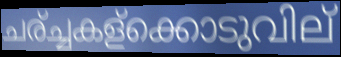
ചര്ച്ചകള്ക്കൊടുവില്